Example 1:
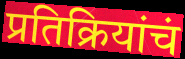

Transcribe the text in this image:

प्रतिक्रियांचं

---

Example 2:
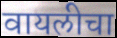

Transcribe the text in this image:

वायलीचा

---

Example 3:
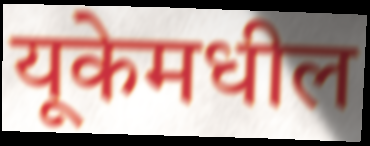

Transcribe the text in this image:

यूकेमधील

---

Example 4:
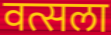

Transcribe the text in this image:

वत्सला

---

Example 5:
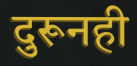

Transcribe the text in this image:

दुरूनही